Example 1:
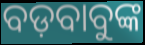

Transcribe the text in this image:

ବଡ଼ବାବୁଙ୍କ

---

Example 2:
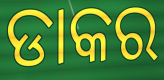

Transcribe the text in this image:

ଡାକର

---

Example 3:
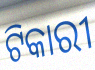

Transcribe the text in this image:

ଟିକାରୀ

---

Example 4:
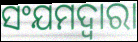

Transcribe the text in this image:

ସଂଯମଦ୍ୱାରା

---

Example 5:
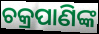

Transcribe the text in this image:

ଚକ୍ରପାଣିଙ୍କ